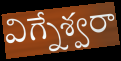
విగ్నేశ్వరా